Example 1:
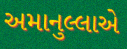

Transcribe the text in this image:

અમાનુલ્લાએ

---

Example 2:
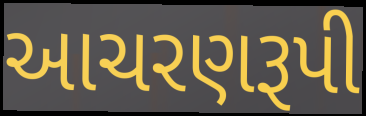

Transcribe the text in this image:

આચરણરૂપી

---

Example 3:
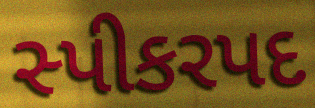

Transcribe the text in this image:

સ્પીકરપદ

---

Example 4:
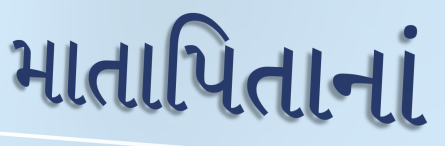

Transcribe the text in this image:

માતાપિતાનાં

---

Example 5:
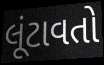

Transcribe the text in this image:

લૂંટાવતો